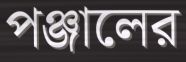
পঞ্জালের